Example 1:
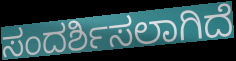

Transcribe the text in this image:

ಸಂದರ್ಶಿಸಲಾಗಿದೆ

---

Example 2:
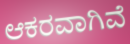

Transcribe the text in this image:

ಆಕರವಾಗಿವೆ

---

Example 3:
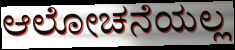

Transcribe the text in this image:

ಆಲೋಚನೆಯಲ್ಲ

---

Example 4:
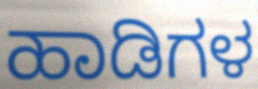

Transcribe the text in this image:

ಹಾಡಿಗಳ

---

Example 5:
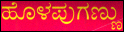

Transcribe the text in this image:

ಹೊಳಪುಗಣ್ಣು